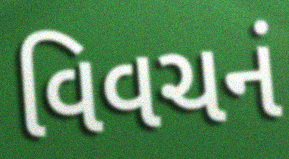
વિવચનં